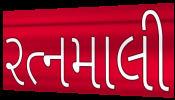
રત્નમાલી